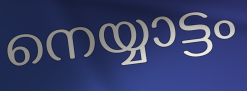
നെയ്യാട്ടം